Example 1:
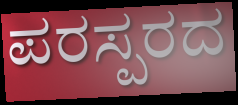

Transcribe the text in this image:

ಪರಸ್ಪರದ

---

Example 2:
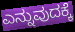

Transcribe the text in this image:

ಎನ್ನುವುದಕ್ಕೆ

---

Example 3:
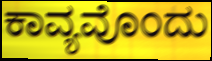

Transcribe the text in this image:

ಕಾವ್ಯವೊಂದು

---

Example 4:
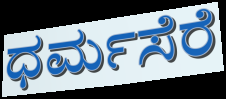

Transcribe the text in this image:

ಧರ್ಮಸೆರೆ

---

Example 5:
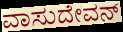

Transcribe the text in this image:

ವಾಸುದೇವನ್